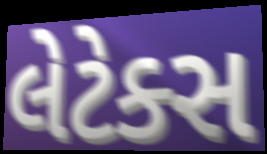
લેટેક્સ